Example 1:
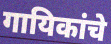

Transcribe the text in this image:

गायिकांचे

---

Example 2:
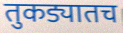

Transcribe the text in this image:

तुकड्यातच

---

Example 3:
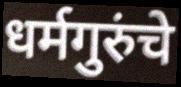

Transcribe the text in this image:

धर्मगुरुंचे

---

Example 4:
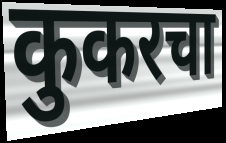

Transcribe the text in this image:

कुकरचा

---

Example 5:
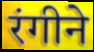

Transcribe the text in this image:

रंगीने